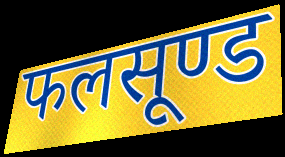
फलसूण्ड